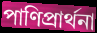
পাণিপ্রার্থনা